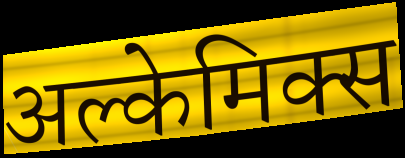
अल्केमिक्स